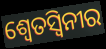
ଶ୍ୱେତସ୍ୱିନୀର